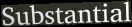
Substantial